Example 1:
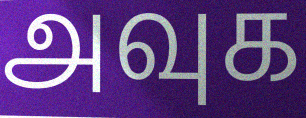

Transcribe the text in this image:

அவுக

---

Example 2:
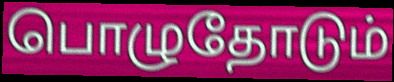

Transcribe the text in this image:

பொழுதோடும்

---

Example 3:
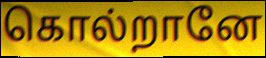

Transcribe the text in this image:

கொல்றானே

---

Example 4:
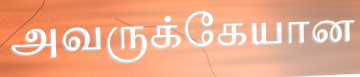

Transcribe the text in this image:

அவருக்கேயான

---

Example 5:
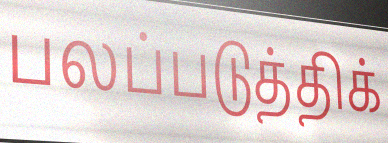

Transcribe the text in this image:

பலப்படுத்திக்